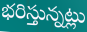
భరిస్తున్నట్లు